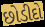
છોડીદો